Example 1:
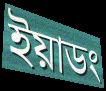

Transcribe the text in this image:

ইয়াডং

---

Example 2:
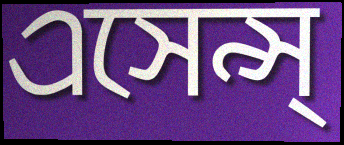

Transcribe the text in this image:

এসেন্স্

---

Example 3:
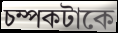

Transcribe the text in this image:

চম্পকটাকে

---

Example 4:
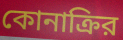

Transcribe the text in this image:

কোনাক্রির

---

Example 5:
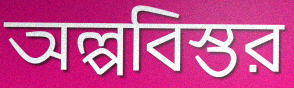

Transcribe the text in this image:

অল্পবিস্তর